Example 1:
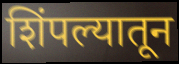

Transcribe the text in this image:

शिंपल्यातून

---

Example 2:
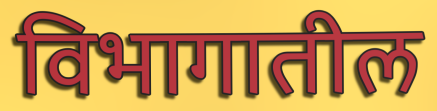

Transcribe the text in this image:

विभागातील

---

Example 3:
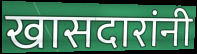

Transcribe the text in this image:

खासदारांनी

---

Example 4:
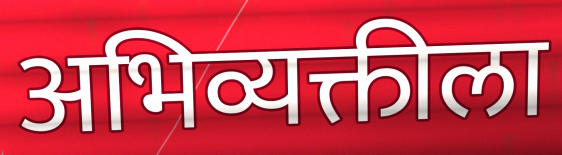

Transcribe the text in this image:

अभिव्यक्तीला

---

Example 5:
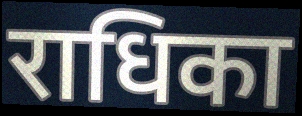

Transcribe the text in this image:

राधिका